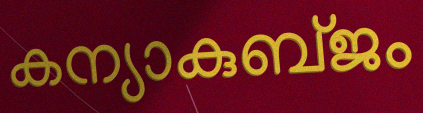
കന്യാകുബ്ജം